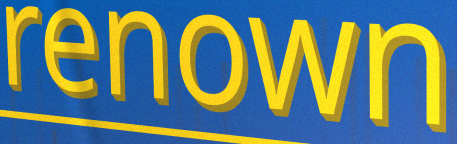
renown